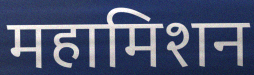
महामिशन